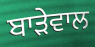
ਬਾੜੇਵਾਲ